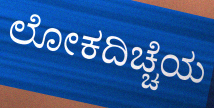
ಲೋಕದಿಚ್ಚೆಯ